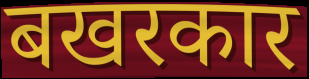
बखरकार